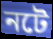
নটে